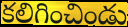
కలిగించిండు